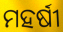
ମହର୍ଷୀ